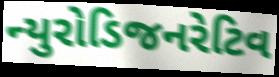
ન્યુરોડિજનરેટિવ